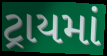
ટ્રાયમાં